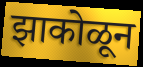
झाकोळून